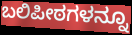
ಬಲಿಪೀಠಗಳನ್ನೂ